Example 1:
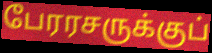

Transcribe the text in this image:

பேரரசருக்குப்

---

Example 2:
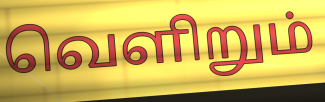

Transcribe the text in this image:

வெளிறும்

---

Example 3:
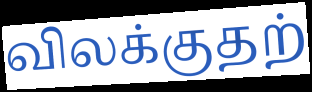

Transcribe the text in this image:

விலக்குதற்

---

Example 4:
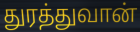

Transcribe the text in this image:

துரத்துவான்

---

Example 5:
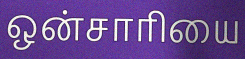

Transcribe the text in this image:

ஒன்சாரியை